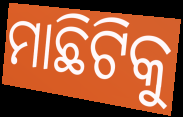
ମାଛିଟିକୁ